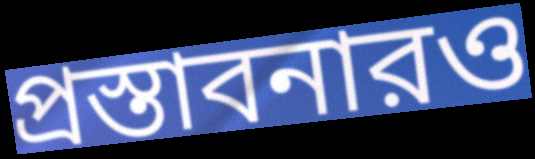
প্রস্তাবনারও